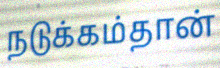
நடுக்கம்தான்